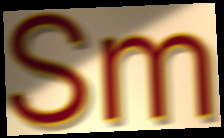
Sm